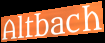
Altbach